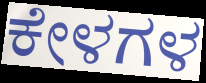
ಕೇಳಗಳ